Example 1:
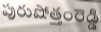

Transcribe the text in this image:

పురుషోత్తంరెడ్డి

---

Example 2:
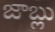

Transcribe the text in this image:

జాబ్లు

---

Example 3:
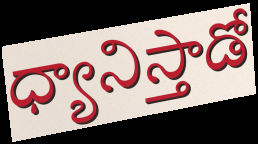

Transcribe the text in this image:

ధ్యానిస్తాడో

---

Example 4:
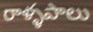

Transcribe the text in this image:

రాళ్ళపాలు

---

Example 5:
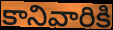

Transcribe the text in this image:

కానివారికి